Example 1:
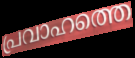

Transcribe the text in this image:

പ്രവാഹത്തെ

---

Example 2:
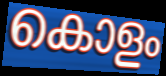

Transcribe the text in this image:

കൊളം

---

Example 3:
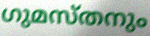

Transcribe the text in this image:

ഗുമസ്തനും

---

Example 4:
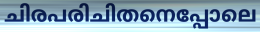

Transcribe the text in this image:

ചിരപരിചിതനെപ്പോലെ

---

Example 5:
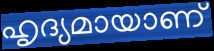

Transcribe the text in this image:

ഹൃദ്യമായാണ്